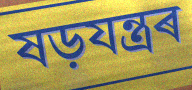
ষড়যন্ত্ৰৰ